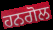
ਹਨਗੋਲ